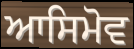
ਆਸਿਮੋਵ